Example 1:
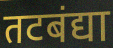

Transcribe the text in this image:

तटबंद्या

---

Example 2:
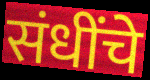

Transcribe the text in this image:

संधींचे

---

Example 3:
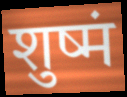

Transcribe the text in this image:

शुष्मं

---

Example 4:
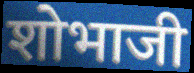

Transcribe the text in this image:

शोभाजी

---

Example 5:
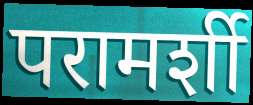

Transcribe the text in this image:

परामर्शी